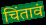
चिंतावं